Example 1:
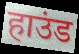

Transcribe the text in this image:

हाउंड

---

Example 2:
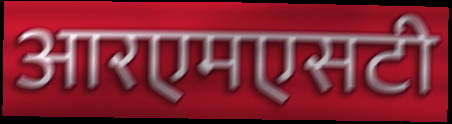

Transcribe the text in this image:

आरएमएसटी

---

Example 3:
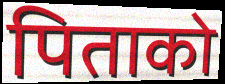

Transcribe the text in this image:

पिताको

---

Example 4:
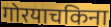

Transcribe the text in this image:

गोरयाचकिना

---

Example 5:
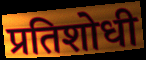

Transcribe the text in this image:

प्रतिशोधी